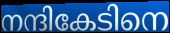
നന്ദികേടിനെ